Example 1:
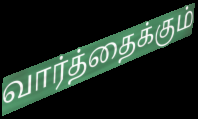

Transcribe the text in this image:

வார்த்தைக்கும்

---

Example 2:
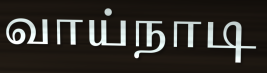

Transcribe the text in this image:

வாய்நாடி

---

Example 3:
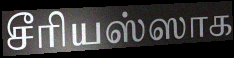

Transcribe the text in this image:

சீரியஸ்ஸாக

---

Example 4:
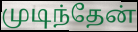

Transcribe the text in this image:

முடிந்தேன்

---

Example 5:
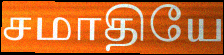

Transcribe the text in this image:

சமாதியே